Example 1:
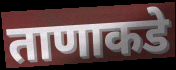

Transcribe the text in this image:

ताणाकडे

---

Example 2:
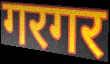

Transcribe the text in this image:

गरगर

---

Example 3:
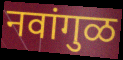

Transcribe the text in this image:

नवांगुळ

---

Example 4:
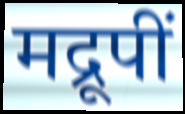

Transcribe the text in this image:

मद्रूपीं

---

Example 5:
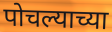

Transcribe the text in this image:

पोचल्याच्या